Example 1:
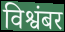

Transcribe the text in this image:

विश्वंबर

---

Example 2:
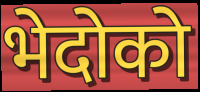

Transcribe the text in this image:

भेदोको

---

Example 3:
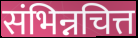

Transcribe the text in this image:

संभिन्नचित्त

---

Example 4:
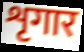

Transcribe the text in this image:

शृगार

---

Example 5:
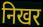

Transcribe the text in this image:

निखर